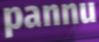
pannu